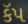
કૅપ